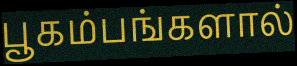
பூகம்பங்களால்